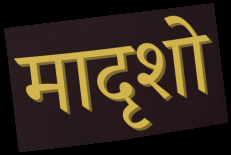
मादृशो